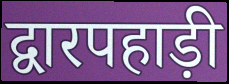
द्वारपहाड़ी